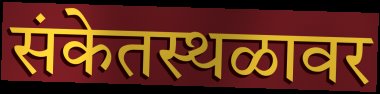
संकेतस्थळावर